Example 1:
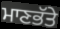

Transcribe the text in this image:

ਮਾਣਭੱਤੇ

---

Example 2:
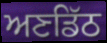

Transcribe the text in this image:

ਅਣਡਿੱਠ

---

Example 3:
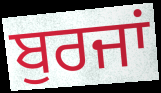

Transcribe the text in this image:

ਬੁਰਜਾਂ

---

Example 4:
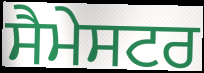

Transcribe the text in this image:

ਸੈਮੇਸਟਰ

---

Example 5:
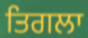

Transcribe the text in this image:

ਤਿਗਲਾ